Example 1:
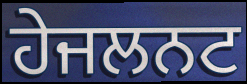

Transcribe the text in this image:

ਹੇਜਲਨਟ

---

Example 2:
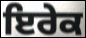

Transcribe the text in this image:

ਇਰੇਕ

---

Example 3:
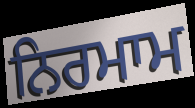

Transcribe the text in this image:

ਨਿਰਮਾਮ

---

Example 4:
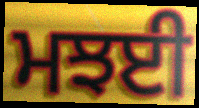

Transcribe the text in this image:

ਮਝਈ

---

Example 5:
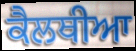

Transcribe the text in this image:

ਕੈਲਥੀਆ